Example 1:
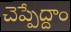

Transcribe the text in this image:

చెప్పేద్దాం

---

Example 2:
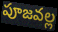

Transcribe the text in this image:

పూజవల్ల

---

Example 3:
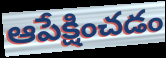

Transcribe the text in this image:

ఆపేక్షించడం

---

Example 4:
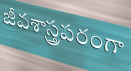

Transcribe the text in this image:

జీవశాస్త్రపరంగా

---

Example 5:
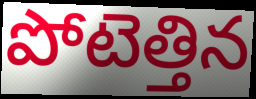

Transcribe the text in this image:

పోటెత్తిన